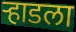
ऱ्हाडला